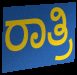
ರಾತ್ರಿ